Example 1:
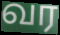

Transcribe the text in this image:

வர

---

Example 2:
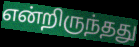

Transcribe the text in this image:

என்றிருந்தது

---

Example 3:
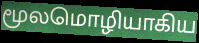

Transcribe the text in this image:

மூலமொழியாகிய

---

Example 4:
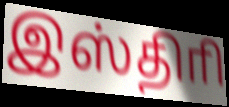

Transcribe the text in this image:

இஸ்திரி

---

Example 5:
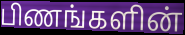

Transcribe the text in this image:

பிணங்களின்